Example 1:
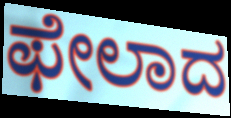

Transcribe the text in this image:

ಫೇಲಾದ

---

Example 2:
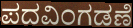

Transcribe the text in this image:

ಪದವಿಂಗಡಣೆ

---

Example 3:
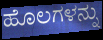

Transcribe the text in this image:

ಹೊಲಗಳನ್ನು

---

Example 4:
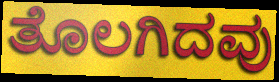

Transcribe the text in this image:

ತೊಲಗಿದವು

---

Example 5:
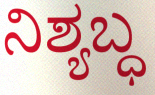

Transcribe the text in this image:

ನಿಶ್ಯಬ್ಧ